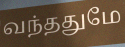
வந்ததுமே